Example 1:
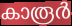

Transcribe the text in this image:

കാരൂർ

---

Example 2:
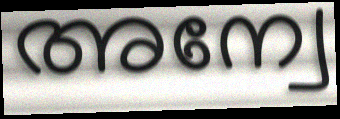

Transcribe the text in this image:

അന്വേ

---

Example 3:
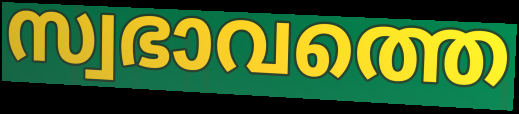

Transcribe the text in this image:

സ്വഭാവത്തെ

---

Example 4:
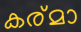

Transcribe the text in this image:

കര്മാ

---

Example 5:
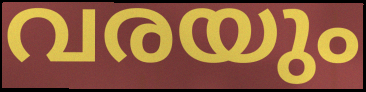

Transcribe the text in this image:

വരയും